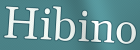
Hibino